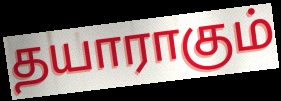
தயாராகும்